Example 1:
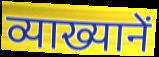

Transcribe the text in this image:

व्याख्यानें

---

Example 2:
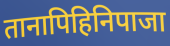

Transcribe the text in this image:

तानापिहिनिपाजा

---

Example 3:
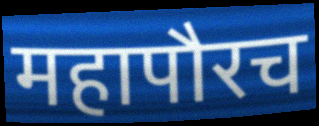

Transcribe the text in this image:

महापौरच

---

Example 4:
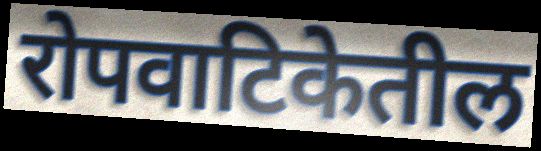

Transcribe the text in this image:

रोपवाटिकेतील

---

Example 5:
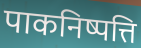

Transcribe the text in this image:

पाकनिष्पत्ति